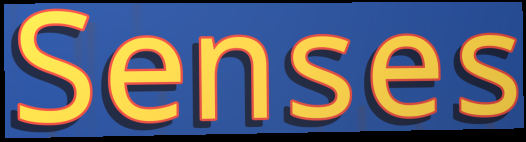
Senses